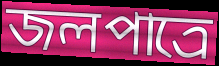
জলপাত্রে